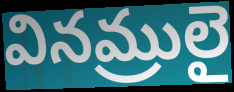
వినమ్రులై